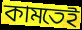
কামতেই